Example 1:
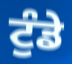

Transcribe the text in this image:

ਟੁੰਡੇ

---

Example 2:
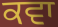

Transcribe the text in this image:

ਕਵਾ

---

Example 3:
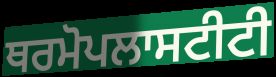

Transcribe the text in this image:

ਥਰਮੋਪਲਾਸਟੀਟੀ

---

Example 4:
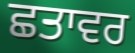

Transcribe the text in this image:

ਛਤਾਵਰ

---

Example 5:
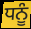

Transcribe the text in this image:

ਧਨੂੰ